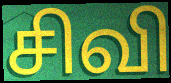
சிவி